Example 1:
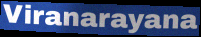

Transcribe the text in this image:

Viranarayana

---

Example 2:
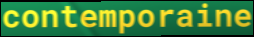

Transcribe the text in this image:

contemporaine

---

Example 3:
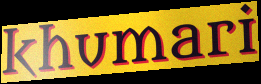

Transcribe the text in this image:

khumari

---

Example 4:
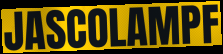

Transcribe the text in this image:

JASCOLAMPF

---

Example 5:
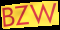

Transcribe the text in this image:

BZW